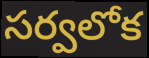
సర్వలోక